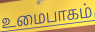
உமைபாகம்